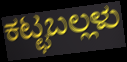
ಕಟ್ಟಬಲ್ಲಳು